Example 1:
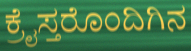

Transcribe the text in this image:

ಕ್ರೈಸ್ತರೊಂದಿಗಿನ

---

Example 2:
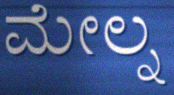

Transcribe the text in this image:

ಮೇಲ್ನ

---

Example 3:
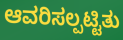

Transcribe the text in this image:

ಆವರಿಸಲ್ಪಟ್ಟಿತು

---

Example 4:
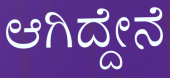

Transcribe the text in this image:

ಆಗಿದ್ದೇನೆ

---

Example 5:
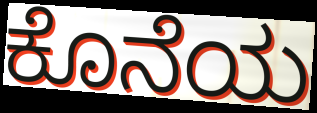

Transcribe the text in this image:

ಕೊನೆಯ